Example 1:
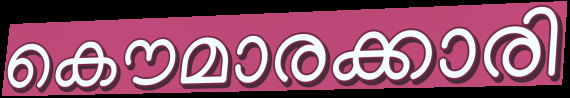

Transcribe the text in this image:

കൌമാരക്കാരി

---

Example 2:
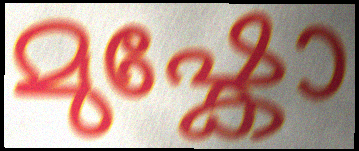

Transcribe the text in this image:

മുഷ്കോ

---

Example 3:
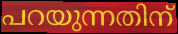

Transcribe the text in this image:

പറയുന്നതിന്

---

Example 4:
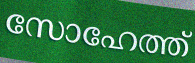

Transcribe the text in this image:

സോഹേത്ത്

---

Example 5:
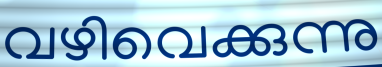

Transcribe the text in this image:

വഴിവെക്കുന്നു